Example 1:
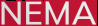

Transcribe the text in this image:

NEMA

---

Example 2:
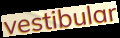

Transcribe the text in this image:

vestibular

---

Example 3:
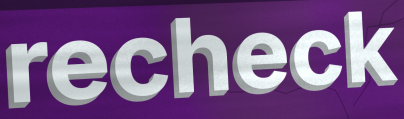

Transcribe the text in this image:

recheck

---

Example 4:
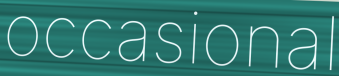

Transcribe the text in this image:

occasional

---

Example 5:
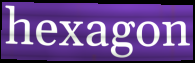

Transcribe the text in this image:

hexagon